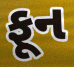
ફૂન